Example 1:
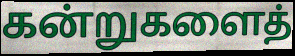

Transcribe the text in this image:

கன்றுகளைத்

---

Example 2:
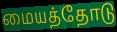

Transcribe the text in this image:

மையத்தோடு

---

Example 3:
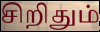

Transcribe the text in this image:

சிறிதும்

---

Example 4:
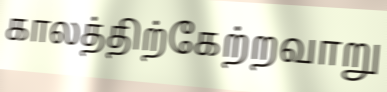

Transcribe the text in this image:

காலத்திற்கேற்றவாறு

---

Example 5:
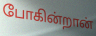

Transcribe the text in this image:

போகின்றான்